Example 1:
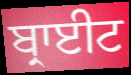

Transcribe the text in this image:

ਬ੍ਰਾਈਟ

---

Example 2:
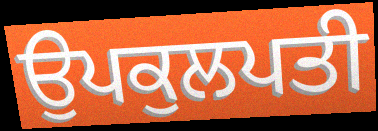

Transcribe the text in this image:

ਉਪਕੁਲਪਤੀ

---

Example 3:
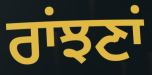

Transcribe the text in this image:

ਰਾਂਝਣਾਂ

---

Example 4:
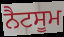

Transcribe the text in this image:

ਨੈਟਸੂਮ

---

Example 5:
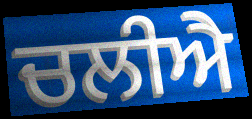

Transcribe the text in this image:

ਚਲੀਐ